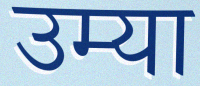
उम्या